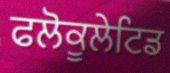
ਫਲੋਕੂਲੇਟਿਡ